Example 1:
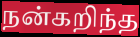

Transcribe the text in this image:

நன்கறிந்த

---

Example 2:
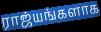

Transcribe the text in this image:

ராஜ்யங்களாக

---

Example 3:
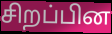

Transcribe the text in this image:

சிறப்பின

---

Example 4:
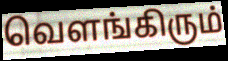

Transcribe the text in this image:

வெளங்கிரும்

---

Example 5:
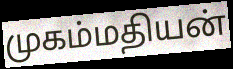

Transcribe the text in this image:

முகம்மதியன்